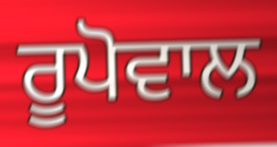
ਰੂਪੋਵਾਲ